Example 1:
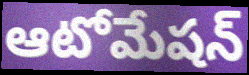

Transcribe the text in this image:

ఆటోమేషన్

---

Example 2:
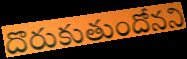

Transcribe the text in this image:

దొరుకుతుందోనని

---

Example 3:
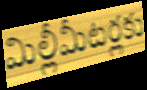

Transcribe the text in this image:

మిల్లీమీటర్లకు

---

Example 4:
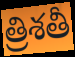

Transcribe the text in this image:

త్రిశతీ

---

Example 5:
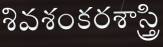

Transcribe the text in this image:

శివశంకరశాస్త్రి